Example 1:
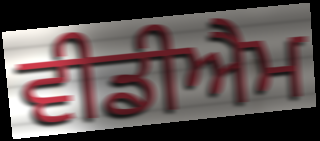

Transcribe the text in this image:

ਵੀਡੀਐਮ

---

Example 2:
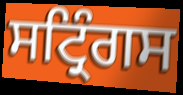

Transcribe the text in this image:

ਸਟ੍ਰਿੰਗਸ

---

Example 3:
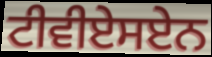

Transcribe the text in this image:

ਟੀਵੀਏਸਏਨ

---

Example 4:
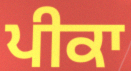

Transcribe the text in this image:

ਪੀਕਾ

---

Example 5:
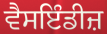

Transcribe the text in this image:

ਵੈਸਇੰਡੀਜ਼